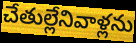
చేతుల్లేనివాళ్లను